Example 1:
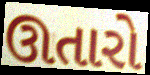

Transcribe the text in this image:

ઊતારો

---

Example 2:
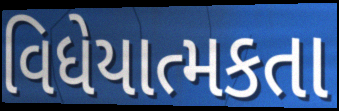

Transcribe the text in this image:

વિધેયાત્મકતા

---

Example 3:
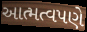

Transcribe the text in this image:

આત્મત્વપણે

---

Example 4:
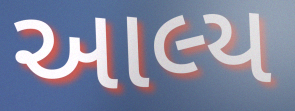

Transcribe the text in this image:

આલ્ય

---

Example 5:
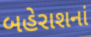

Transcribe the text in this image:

બહેરાશનાં